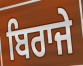
ਬਿਰਾਜੇ